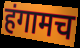
हंगामच